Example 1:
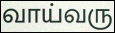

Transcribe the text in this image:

வாய்வரு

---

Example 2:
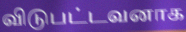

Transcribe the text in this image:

விடுபட்டவனாக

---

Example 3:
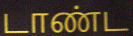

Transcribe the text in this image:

டாண்ட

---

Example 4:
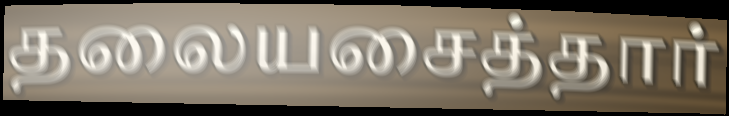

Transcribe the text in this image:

தலையசைத்தார்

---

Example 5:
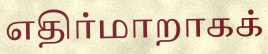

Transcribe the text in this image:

எதிர்மாறாகக்